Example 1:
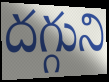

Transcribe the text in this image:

దగ్గుని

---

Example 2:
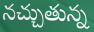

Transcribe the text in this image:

నచ్చుతున్న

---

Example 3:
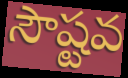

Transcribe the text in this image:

సౌష్టవ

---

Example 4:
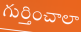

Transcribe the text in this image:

గుర్తించాలా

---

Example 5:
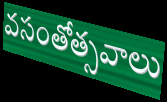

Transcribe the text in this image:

వసంతోత్సవాలు